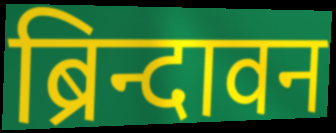
ब्रिन्दावन